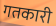
गतकारी